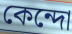
কেন্দো